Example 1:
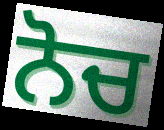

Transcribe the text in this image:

ਨੋਚ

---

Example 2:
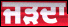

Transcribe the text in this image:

ਜੜਦਾ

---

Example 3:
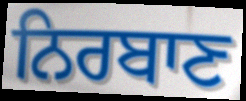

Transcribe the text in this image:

ਨਿਰਬਾਣ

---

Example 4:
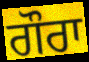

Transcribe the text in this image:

ਗੌਰਾ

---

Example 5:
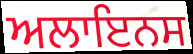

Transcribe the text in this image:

ਅਲਾਇਨਸ